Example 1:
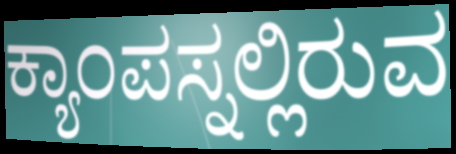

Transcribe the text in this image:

ಕ್ಯಾಂಪಸ್ನಲ್ಲಿರುವ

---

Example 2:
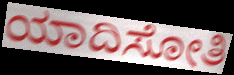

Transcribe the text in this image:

ಯಾದಿಸೋತಿ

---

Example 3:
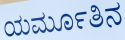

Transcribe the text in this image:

ಯರ್ಮೂತಿನ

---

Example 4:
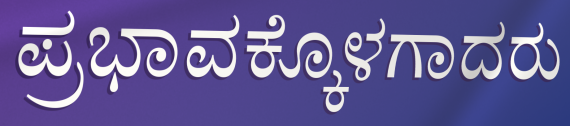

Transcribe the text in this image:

ಪ್ರಭಾವಕ್ಕೊಳಗಾದರು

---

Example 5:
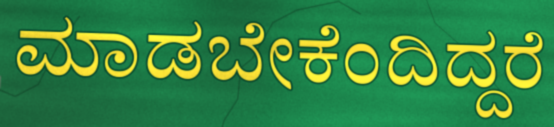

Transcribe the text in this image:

ಮಾಡಬೇಕೆಂದಿದ್ದರೆ